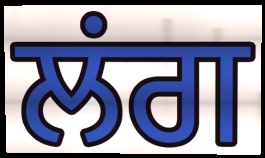
ਲਂਗ